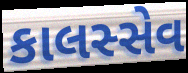
કાલસ્સેવ